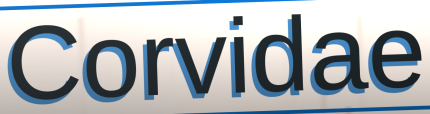
Corvidae